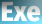
Exe